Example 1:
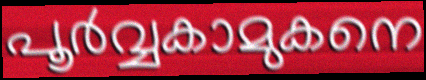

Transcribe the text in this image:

പൂർവ്വകാമുകനെ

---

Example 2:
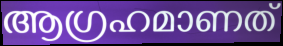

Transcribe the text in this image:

ആഗ്രഹമാണത്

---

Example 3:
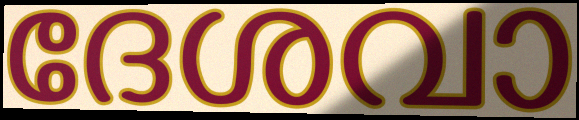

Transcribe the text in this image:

ദേശവാ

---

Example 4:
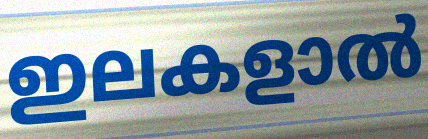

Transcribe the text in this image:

ഇലകളാൽ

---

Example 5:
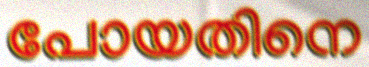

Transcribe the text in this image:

പോയതിനെ